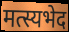
मत्स्यभेद